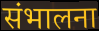
संभालना